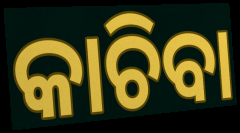
କାଚିବା